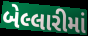
બેલ્લારીમાં